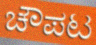
ಚೌಪಟ